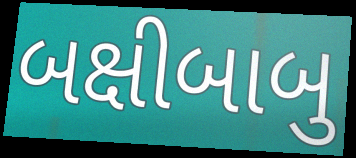
બક્ષીબાબુ